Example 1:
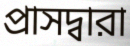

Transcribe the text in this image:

প্রাসদ্বারা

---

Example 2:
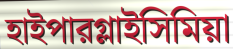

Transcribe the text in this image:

হাইপারগ্লাইসিমিয়া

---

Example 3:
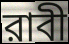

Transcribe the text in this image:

রাবী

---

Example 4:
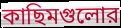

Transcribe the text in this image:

কাছিমগুলোর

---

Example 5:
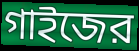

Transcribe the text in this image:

গাইজের